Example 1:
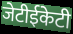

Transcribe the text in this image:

जेटीईकेटी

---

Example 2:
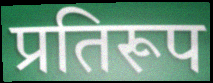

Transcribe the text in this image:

प्रतिरूप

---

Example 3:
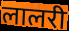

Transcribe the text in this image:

लालरी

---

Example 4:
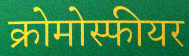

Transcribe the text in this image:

क्रोमोस्फीयर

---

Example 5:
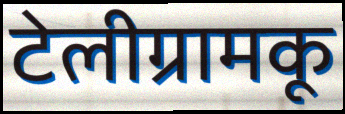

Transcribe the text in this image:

टेलीग्रामकू